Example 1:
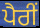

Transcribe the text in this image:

ਪੈਰੀਂ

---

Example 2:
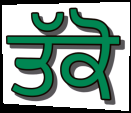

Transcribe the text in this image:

ਤੱਕੋ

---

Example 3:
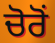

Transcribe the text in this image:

ਚੋਰੋਂ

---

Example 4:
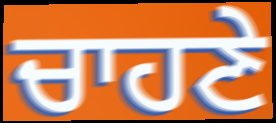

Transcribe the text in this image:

ਚਾਹਣੇ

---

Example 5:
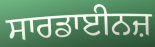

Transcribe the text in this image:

ਸਾਰਡਾਈਨਜ਼